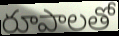
రూపాలతో